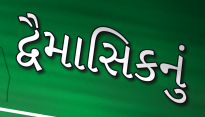
દ્વૈમાસિકનું